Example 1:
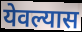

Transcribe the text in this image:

येवल्यास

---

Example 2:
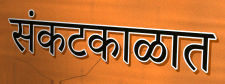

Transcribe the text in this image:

संकटकाळात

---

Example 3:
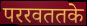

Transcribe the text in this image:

पररवततके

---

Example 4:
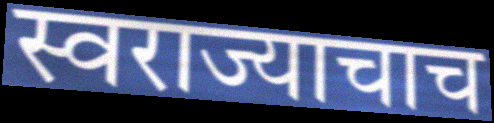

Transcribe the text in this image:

स्वराज्याचाच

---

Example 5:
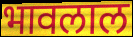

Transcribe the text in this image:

भावलाल